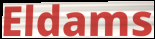
Eldams